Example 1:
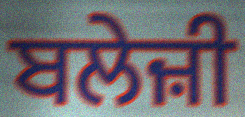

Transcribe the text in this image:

ਬਲੇਜ਼ੀ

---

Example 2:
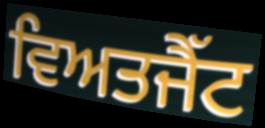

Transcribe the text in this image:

ਵਿਅਤਜੈੱਟ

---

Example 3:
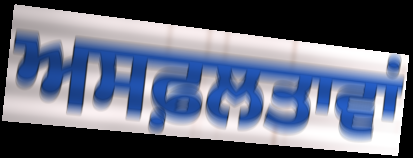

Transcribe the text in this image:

ਅਸਫ਼ਲਤਾਵਾਂ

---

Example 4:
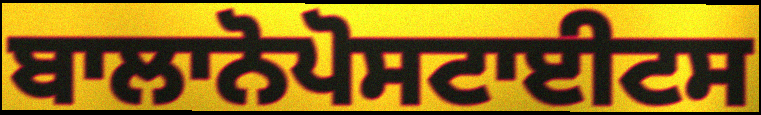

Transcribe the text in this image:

ਬਾਲਾਨੋਪੋਸਟਾਈਟਸ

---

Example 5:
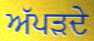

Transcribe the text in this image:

ਅੱਪੜਦੇ